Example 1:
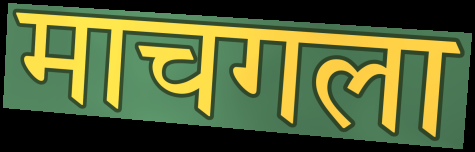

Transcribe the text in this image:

माचगला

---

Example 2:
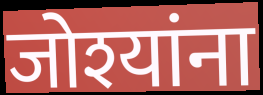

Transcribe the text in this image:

जोश्यांना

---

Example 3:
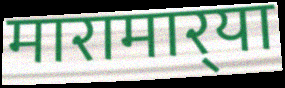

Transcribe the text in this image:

मारामार्‍या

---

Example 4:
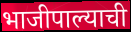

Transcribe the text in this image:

भाजीपाल्याची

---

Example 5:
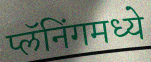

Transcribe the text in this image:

प्लॅनिंगमध्ये